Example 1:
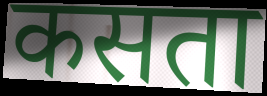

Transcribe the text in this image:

कसता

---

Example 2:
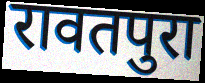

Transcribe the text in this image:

रावतपुरा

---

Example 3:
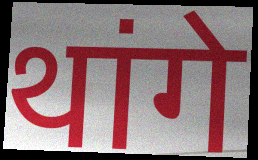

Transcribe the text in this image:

थांगे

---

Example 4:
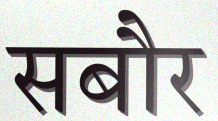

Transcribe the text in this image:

सबौर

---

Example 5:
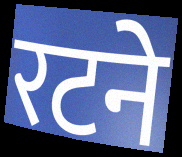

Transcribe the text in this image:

रटने